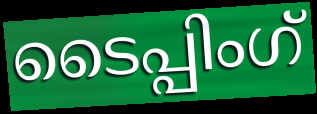
ടൈപ്പിംഗ്